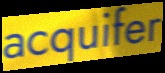
acquifer